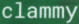
clammy